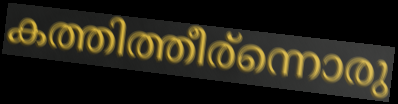
കത്തിത്തീര്ന്നൊരു